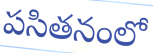
పసితనంలో